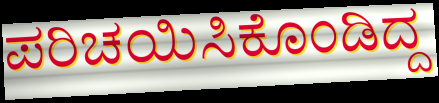
ಪರಿಚಯಿಸಿಕೊಂಡಿದ್ದ